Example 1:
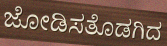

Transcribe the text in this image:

ಜೋಡಿಸತೊಡಗಿದ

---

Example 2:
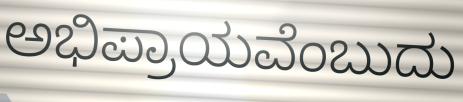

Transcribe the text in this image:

ಅಭಿಪ್ರಾಯವೆಂಬುದು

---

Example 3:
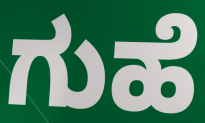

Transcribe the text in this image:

ಗುಹೆ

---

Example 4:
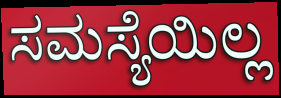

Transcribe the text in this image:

ಸಮಸ್ಯೆಯಿಲ್ಲ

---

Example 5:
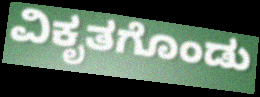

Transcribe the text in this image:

ವಿಕೃತಗೊಂಡು